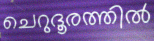
ചെറുദൂരത്തിൽ